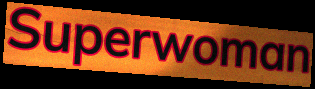
Superwoman